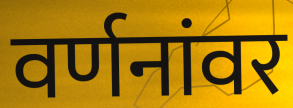
वर्णनांवर